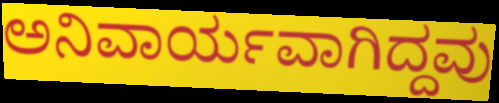
ಅನಿವಾರ್ಯವಾಗಿದ್ದವು